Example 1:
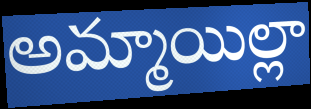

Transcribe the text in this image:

అమ్మాయిల్లా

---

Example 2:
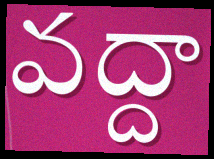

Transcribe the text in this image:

వద్దా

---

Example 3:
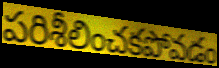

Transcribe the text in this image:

పరిశీలించకపోవడం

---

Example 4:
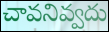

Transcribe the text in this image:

చావనివ్వదు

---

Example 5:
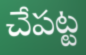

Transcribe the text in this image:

చేపట్ట